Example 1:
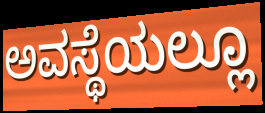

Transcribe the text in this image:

ಅವಸ್ಥೆಯಲ್ಲೂ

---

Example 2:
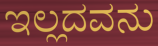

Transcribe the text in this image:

ಇಲ್ಲದವನು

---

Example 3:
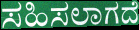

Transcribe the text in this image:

ಸಹಿಸಲಾಗದೆ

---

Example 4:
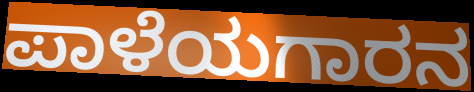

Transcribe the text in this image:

ಪಾಳೆಯಗಾರನ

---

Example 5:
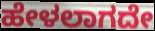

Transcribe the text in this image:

ಹೇಳಲಾಗದೇ